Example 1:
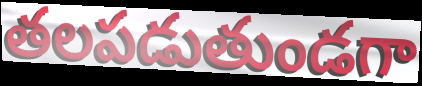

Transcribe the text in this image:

తలపడుతుండగా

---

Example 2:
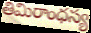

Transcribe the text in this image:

తిమిరాంధస్య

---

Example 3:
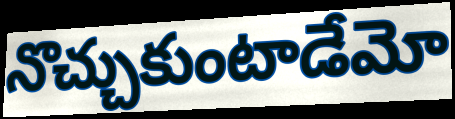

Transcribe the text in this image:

నొచ్చుకుంటాడేమో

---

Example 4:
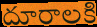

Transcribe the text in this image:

దూరాలకి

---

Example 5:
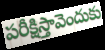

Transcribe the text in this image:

పరీక్షిస్తావెందుకు